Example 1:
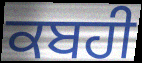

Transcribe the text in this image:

ਕਬਹੀ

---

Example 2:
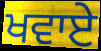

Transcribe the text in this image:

ਖਵਾਏ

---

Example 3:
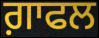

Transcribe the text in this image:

ਗ਼ਾਫਲ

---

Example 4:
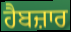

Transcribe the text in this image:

ਹੈਬਜ਼ਾਰ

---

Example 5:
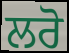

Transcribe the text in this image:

ਲਰੋ